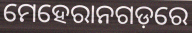
ମେହେରାନଗଡ଼ରେ